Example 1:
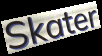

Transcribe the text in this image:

Skater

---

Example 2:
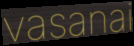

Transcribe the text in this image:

vasanai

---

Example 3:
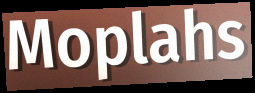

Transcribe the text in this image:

Moplahs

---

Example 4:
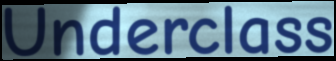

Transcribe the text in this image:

Underclass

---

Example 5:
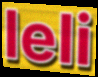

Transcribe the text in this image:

leli